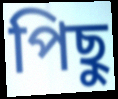
পিছু